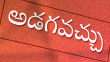
అడగవచ్చు